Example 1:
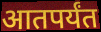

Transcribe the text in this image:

आतपर्यंत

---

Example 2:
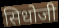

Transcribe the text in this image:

सिधोजी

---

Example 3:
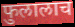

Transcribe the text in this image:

फुलालाच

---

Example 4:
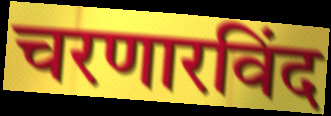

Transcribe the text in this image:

चरणारविंद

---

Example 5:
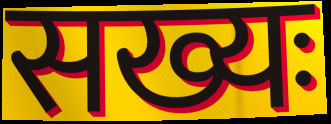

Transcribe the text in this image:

सख्यः